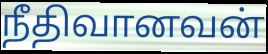
நீதிவானவன்